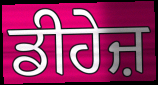
ਡੀਹੇਜ਼